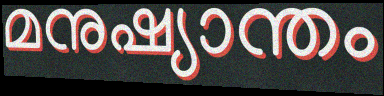
മനുഷ്യാന്തം